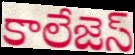
కాలేజెస్